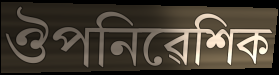
ঔপনিৱেশিক